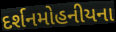
દર્શનમોહનીયના